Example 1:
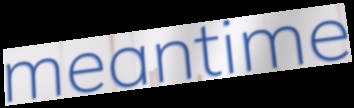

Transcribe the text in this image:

meantime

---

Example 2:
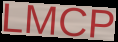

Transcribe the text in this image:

LMCP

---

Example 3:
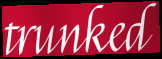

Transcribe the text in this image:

trunked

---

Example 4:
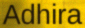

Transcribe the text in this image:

Adhira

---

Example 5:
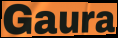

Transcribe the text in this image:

Gaura